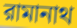
রামানাথ